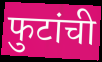
फुटांची